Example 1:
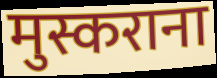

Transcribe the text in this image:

मुस्कराना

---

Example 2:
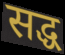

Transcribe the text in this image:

सद्ध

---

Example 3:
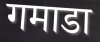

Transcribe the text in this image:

गमाडा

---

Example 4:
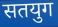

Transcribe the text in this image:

सतयुग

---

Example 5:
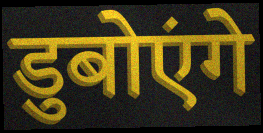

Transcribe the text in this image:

डुबोएंगे